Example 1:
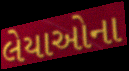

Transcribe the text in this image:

લેયાઓના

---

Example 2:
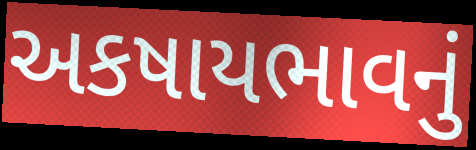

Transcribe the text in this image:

અકષાયભાવનું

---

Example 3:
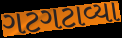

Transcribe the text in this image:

ગટગટાવ્યા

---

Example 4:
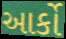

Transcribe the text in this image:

આર્કો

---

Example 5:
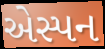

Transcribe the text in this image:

એસ્પન